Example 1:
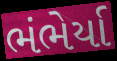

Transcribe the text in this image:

ભંભેર્યા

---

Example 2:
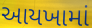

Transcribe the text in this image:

આયખામાં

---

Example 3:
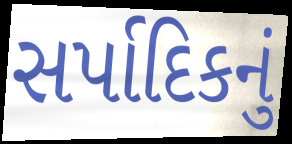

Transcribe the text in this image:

સર્પાદિકનું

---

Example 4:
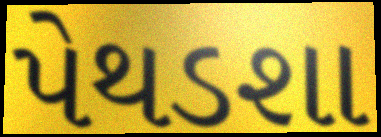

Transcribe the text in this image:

પેથડશા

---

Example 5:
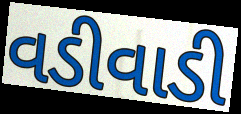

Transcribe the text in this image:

વડીવાડી